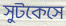
সুটকেসে